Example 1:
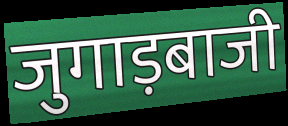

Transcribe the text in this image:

जुगाड़बाजी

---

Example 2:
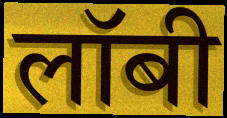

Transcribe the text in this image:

लॉबी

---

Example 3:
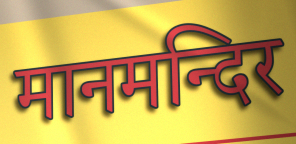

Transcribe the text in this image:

मानमन्दिर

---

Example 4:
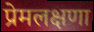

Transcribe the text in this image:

प्रेमलक्षणा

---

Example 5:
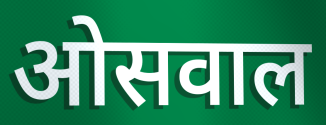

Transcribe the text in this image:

ओसवाल